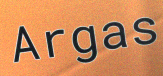
Argas